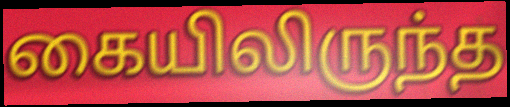
கையிலிருந்த